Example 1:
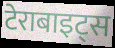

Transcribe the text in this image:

टेराबाइट्स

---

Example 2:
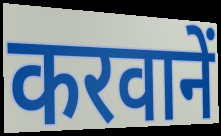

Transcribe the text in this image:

करवानें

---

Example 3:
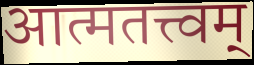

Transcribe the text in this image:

आत्मतत्त्वम्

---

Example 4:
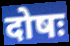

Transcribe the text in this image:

दोषः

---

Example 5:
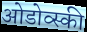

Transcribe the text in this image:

ओडोव्स्की